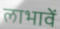
लाभावें